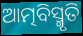
ଆତ୍ମବିସ୍ମୃତି